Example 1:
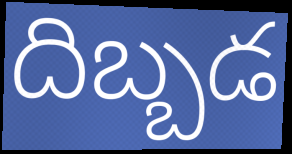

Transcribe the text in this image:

దిబ్బడ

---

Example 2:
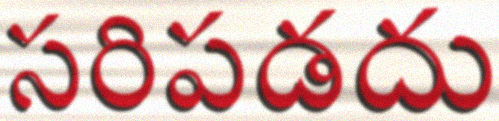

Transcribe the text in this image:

సరిపడదు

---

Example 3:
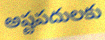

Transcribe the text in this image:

అష్టపదులకు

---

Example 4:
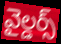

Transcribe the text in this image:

వైల్డర్స్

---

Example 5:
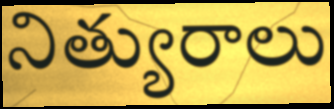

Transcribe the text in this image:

నిత్యురాలు